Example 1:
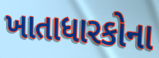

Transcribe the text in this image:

ખાતાધારકોના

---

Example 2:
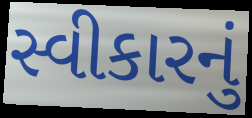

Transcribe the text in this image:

સ્વીકારનું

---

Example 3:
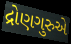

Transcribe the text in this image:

દ્રોણગુરુએ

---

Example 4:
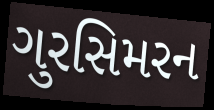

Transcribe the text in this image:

ગુરસિમરન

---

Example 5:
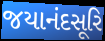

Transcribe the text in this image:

જયાનંદસૂરિ